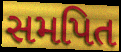
સમપિત